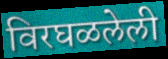
विरघळलेली